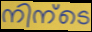
നിന്ടെ